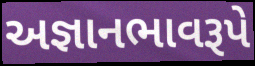
અજ્ઞાનભાવરૂપે